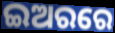
ଇଅରରେ